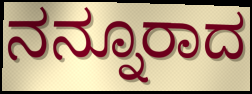
ನನ್ನೂರಾದ